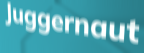
Juggernaut